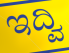
ಇದ್ವಿ